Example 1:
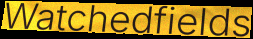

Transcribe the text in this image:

Watchedfields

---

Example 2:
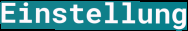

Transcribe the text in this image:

Einstellung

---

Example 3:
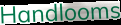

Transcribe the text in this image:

Handlooms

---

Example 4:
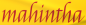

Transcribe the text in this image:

mahintha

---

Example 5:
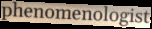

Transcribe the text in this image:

phenomenologist